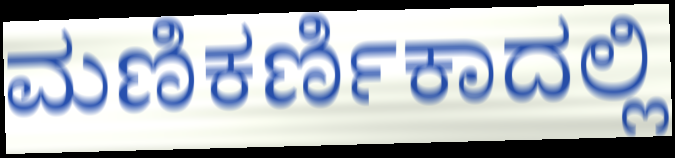
ಮಣಿಕರ್ಣಿಕಾದಲ್ಲಿ